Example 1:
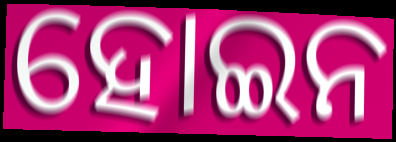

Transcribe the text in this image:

ହୋଇନ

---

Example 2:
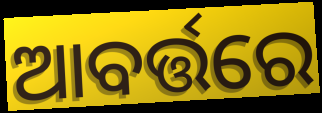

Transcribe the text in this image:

ଆବର୍ତ୍ତରେ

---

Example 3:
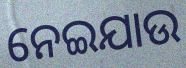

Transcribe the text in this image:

ନେଇଯାଉ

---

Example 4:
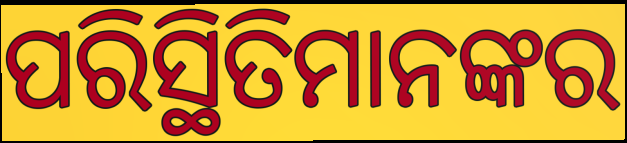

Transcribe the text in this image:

ପରିସ୍ଥିତିମାନଙ୍କର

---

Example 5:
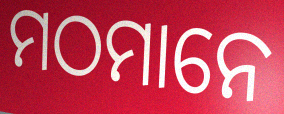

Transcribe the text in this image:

ମଠମାନେ